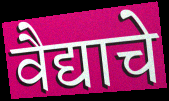
वैद्याचे